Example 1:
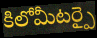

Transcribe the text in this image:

కిలోమీటర్పై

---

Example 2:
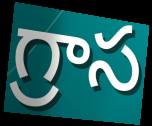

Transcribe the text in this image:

గ్రాస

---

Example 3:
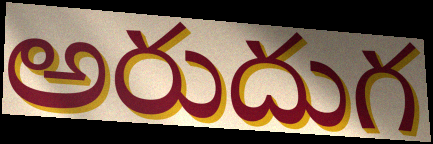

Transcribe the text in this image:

అరుదుగ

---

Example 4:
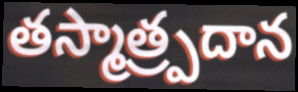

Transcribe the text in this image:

తస్మాత్ర్పదాన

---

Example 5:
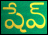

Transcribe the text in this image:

షేవ్